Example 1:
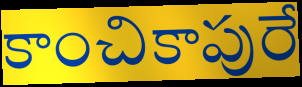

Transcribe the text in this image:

కాంచికాపురే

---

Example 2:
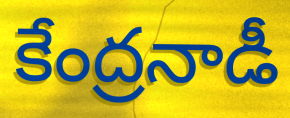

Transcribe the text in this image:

కేంద్రనాడీ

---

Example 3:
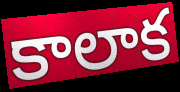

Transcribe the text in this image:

కాలాక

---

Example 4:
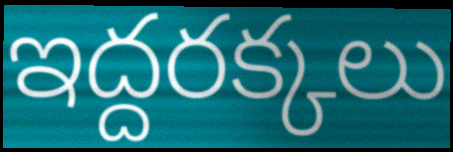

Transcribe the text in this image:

ఇద్దరక్కలు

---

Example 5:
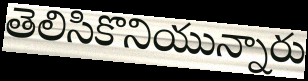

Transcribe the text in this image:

తెలిసికొనియున్నారు